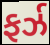
ફર્ઝ